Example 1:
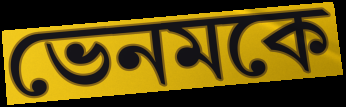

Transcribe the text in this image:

ভেনমকে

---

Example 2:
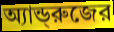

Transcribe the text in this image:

অ্যান্ড্‌রুজের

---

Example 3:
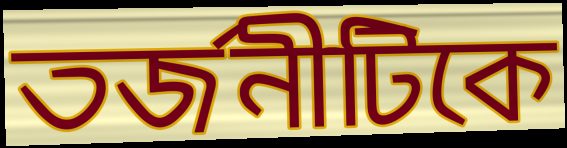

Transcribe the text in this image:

তর্জনীটিকে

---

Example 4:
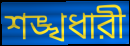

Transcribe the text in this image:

শঙ্খধারী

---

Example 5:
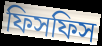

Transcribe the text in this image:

ফিসফিস